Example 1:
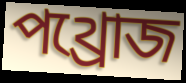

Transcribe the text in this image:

পথ্রোজ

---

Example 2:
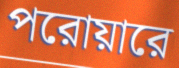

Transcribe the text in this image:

পরোয়ারে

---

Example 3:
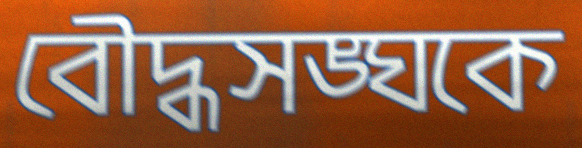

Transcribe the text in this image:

বৌদ্ধসঙ্ঘকে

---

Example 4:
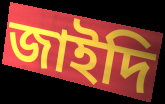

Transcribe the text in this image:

জাইদি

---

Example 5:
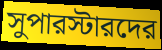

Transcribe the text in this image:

সুপারস্টারদের